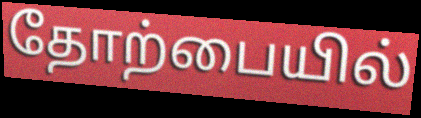
தோற்பையில்